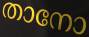
താനോ